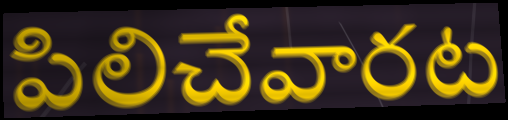
పిలిచేవారట